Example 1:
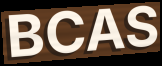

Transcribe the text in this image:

BCAS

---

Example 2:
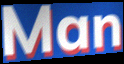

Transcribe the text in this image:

Man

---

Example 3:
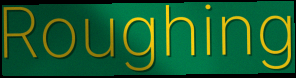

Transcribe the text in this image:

Roughing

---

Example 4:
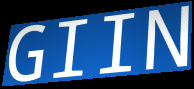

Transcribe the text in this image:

GIIN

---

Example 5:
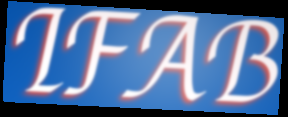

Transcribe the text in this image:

IFAB